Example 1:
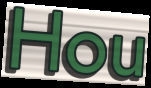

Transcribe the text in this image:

Hou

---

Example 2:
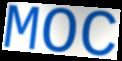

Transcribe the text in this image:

MOC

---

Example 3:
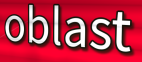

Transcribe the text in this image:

oblast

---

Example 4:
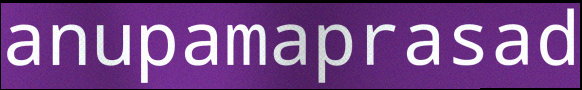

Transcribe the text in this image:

anupamaprasad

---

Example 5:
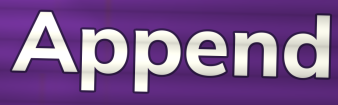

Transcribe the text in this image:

Append